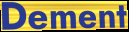
Dement